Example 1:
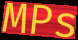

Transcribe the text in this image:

MPs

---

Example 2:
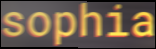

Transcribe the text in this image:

sophia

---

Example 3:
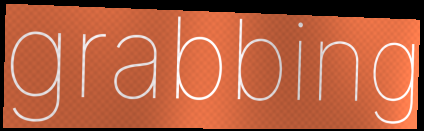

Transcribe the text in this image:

grabbing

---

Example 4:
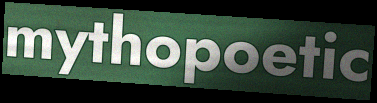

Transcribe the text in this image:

mythopoetic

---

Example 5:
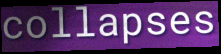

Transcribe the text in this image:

collapses